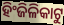
ହିଂଜିଳିକାଟୁ